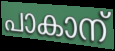
പാകാന്